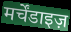
मर्चेंडाइज़